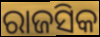
ରାଜସିକ